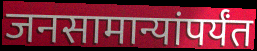
जनसामान्यांपर्यंत